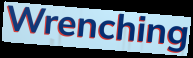
Wrenching